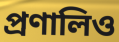
প্রণালিও